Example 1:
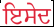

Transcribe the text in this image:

ਇਸੇਦ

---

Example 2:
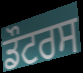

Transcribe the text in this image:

ਡੌਟਰਸ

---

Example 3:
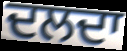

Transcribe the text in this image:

ਦਲਦਾ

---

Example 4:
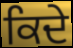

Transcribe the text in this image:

ਕਿਦੇ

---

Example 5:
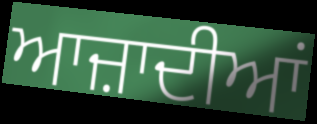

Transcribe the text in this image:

ਆਜ਼ਾਦੀਆਂ